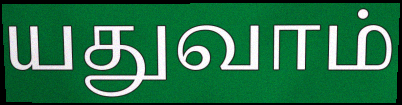
யதுவாம்